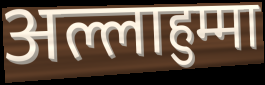
अल्लाहुम्मा